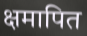
क्षमापित